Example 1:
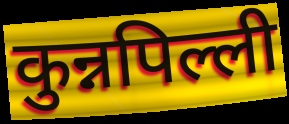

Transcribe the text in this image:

कुन्नपिल्ली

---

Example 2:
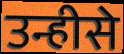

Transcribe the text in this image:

उन्हीसे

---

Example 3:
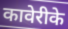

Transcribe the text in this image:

कावेरीके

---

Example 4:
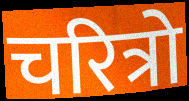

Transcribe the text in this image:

चरित्रो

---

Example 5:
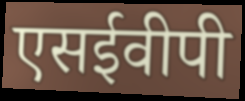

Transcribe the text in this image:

एसईवीपी